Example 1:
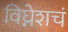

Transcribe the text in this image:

विघ्नेशचं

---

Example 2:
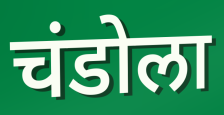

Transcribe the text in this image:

चंडोला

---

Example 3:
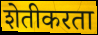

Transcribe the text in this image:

शेतीकरता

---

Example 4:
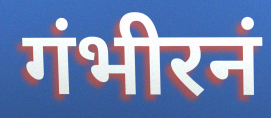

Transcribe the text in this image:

गंभीरनं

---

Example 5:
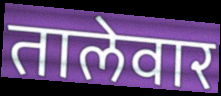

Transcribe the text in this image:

तालेवार